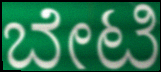
ಬೇಟಿ